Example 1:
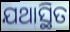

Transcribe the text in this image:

ଯଥାସ୍ଥିତ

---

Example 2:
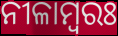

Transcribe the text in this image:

ନୀଳାମ୍ବରଃ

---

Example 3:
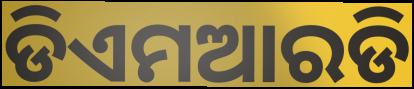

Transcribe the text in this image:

ଡିଏମଆରଡି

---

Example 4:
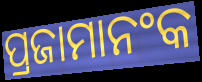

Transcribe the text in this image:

ପ୍ରଜାମାନଂକ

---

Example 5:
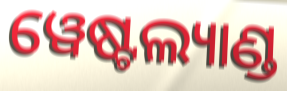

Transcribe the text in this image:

ୱେଷ୍ଟଲ୍ୟାଣ୍ଡ